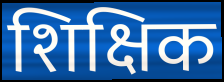
शिक्षिक